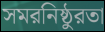
সমরনিষ্ঠুরতা